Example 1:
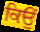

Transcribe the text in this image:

ਕਿਉੰ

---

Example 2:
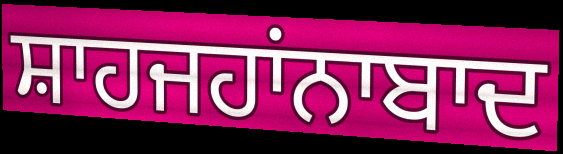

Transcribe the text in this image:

ਸ਼ਾਹਜਹਾਂਨਾਬਾਦ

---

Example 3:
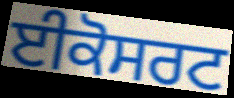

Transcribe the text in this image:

ਈਕੋਸਰਟ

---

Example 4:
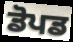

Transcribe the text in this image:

ਡੋਪਡ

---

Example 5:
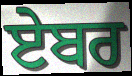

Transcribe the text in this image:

ਏਬਰ